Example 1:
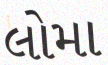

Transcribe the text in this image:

લોમા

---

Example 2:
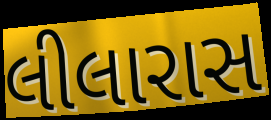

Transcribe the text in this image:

લીલારાસ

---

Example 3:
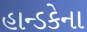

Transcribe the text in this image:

હાન્ડકેના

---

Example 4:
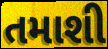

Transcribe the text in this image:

તમાશી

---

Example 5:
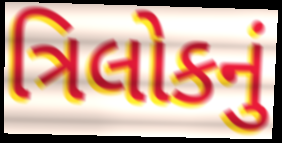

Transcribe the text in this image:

ત્રિલોકનું